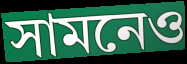
সামনেও